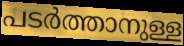
പടർത്താനുള്ള